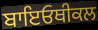
ਬਾਇਓਥੀਕਲ